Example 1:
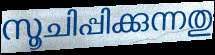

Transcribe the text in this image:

സൂചിപ്പിക്കുന്നതു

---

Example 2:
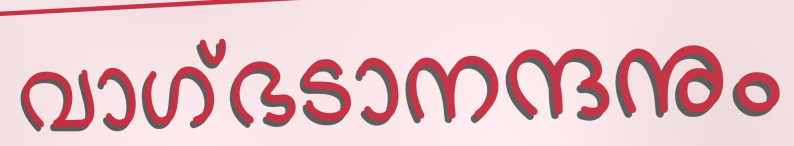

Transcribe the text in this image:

വാഗ്ഭടാനന്ദനും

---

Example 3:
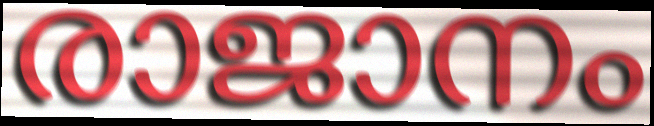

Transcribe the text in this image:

രാജാനം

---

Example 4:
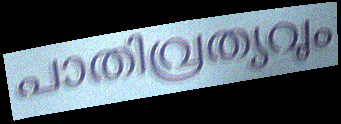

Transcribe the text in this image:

പാതിവ്രത്യവും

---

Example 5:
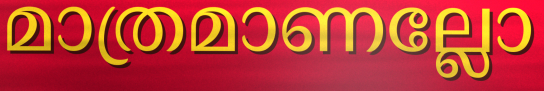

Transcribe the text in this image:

മാത്രമാണല്ലോ